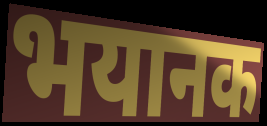
भयानक